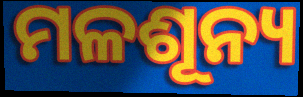
ମଳଶୂନ୍ୟ